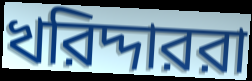
খরিদ্দাররা